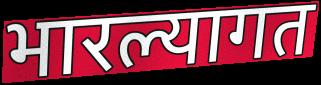
भारल्यागत